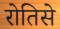
रोतिसे